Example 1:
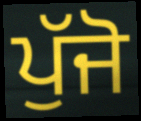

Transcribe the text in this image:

ਪੁੱਜੋ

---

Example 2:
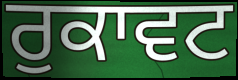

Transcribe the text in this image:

ਰੁਕਾਵਟ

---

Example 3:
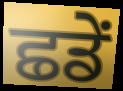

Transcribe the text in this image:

ਛਡੇਂ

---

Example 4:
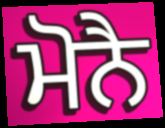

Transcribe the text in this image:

ਮੋਨੈ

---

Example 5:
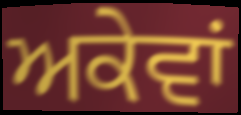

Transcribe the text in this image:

ਅਕੇਵਾਂ